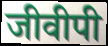
जीवीपी